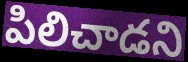
పిలిచాడని